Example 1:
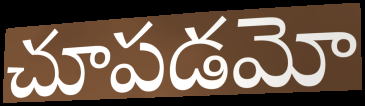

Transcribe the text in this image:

చూపడమో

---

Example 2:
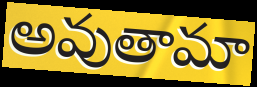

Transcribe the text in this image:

అవుతామా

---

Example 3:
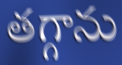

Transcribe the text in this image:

తగ్గాను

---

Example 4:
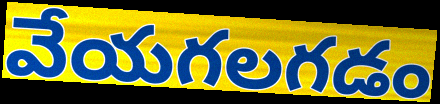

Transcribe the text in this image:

వేయగలగడం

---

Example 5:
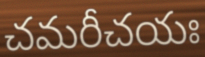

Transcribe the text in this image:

చమరీచయః